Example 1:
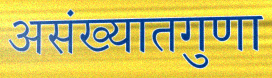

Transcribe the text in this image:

असंख्यातगुणा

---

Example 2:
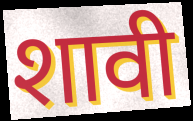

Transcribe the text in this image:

शावी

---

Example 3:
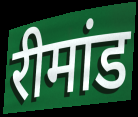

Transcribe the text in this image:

रीमांड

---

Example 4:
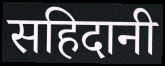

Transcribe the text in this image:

सहिदानी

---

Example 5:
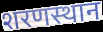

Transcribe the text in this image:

शरणस्थान